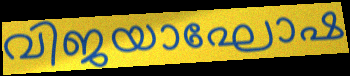
വിജയാഘോഷ